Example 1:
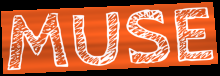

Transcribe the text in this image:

MUSE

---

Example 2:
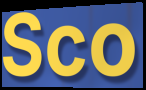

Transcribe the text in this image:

Sco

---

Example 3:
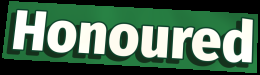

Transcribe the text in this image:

Honoured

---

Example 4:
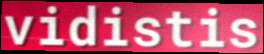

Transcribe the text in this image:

vidistis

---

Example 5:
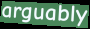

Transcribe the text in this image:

arguably